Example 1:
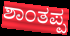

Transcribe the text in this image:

ಶಾಂತಪ್ಪ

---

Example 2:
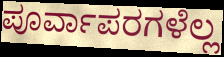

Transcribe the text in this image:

ಪೂರ್ವಾಪರಗಳೆಲ್ಲ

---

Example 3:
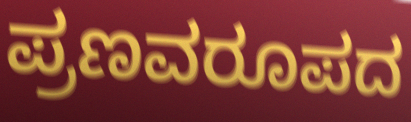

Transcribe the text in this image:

ಪ್ರಣವರೂಪದ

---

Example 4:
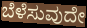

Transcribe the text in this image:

ಬೆಳೆಸುವುದೇ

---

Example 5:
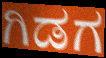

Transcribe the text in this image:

ಗಿಡಗ